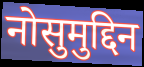
नोसुमुद्दिन